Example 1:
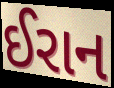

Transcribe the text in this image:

ઈરાન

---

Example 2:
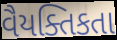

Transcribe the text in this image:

વૈયક્તિકતા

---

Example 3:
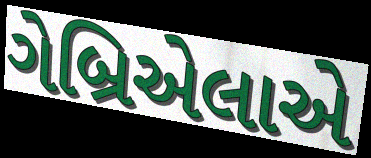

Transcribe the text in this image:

ગેબ્રિએલાએ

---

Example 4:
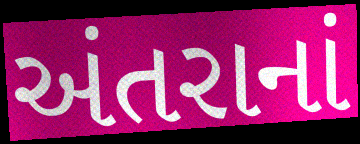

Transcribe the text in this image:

અંતરાનાં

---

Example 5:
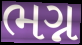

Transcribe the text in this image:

ભગ્ન